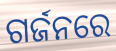
ଗର୍ଜନରେ